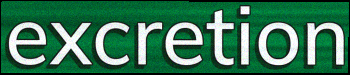
excretion